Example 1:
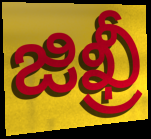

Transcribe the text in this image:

జిఖ్రీ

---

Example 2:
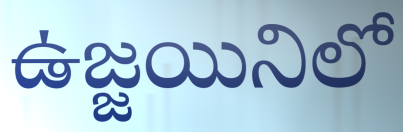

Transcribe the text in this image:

ఉజ్జయినిలో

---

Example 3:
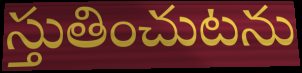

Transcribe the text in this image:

స్తుతించుటను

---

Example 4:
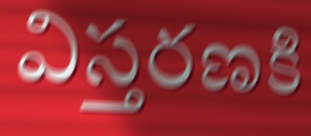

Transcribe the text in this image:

విస్తరణకి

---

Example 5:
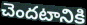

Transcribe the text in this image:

చెందటానికి